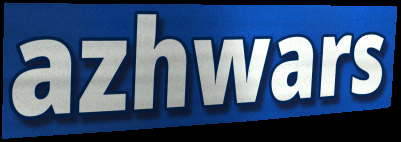
azhwars